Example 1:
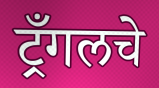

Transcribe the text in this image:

ट्रँगलचे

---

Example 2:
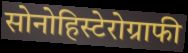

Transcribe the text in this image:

सोनोहिस्टेरोग्राफी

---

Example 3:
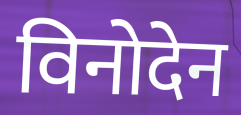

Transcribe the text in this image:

विनोदेन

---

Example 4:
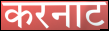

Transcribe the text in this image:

करनाट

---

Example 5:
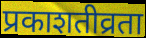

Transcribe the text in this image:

प्रकाशतीव्रता